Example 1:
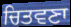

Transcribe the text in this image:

ਚਿਤਵਣਾ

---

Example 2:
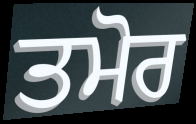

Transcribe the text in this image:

ਤਮੋਰ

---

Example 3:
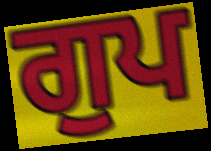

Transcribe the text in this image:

ਗੁਪ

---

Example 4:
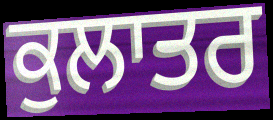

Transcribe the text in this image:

ਕੁਲਾਤਰ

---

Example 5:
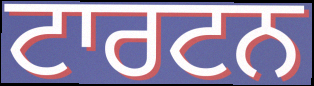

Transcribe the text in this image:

ਟਾਰਟਨ